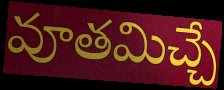
వూతమిచ్చే